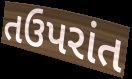
તઉપરાંત